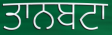
ਤਾਨਬਟਾ